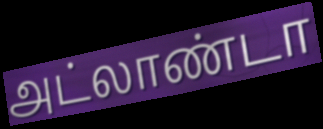
அட்லாண்டா